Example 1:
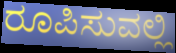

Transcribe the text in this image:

ರೂಪಿಸುವಲ್ಲಿ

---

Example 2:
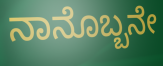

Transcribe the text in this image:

ನಾನೊಬ್ಬನೇ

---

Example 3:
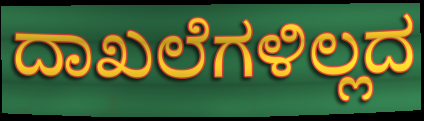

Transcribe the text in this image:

ದಾಖಲೆಗಳಿಲ್ಲದ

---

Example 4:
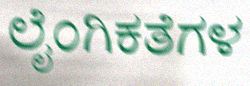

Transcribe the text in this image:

ಲೈಂಗಿಕತೆಗಳ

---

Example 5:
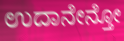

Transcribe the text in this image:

ಉದಾನೇನ್ತೋ